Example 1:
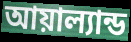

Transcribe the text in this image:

আয়াল্যান্ড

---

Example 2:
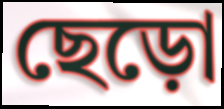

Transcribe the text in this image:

ছেড়ো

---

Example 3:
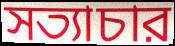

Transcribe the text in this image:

সত্যাচার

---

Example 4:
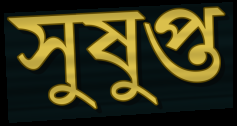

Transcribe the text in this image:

সুষুপ্ত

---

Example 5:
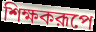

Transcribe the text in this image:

শিক্ষকরূপে